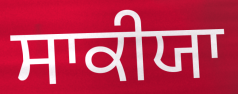
ਸਾਕੀਯਾ